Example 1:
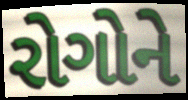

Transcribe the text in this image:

રોગોને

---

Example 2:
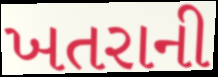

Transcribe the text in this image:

ખતરાની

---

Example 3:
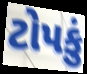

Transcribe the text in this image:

ટોપકું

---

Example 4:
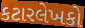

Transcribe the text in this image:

કટારલેખકો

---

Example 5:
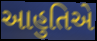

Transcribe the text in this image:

આહુતિએ